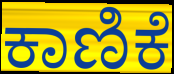
ಕಾಣಿಕೆ